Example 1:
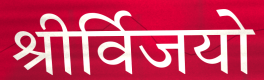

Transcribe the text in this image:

श्रीर्विजयो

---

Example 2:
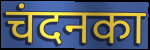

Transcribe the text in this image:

चंदनका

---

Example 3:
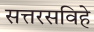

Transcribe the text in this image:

सत्तरसविहे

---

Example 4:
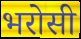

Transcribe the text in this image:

भरोसी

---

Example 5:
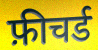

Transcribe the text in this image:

फ़ीचर्ड